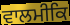
ਵਾਲਮੀਕਿ